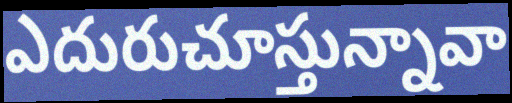
ఎదురుచూస్తున్నావా